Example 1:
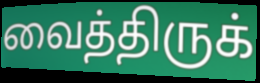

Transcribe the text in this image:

வைத்திருக்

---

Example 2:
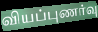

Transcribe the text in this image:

வியப்புணர்வு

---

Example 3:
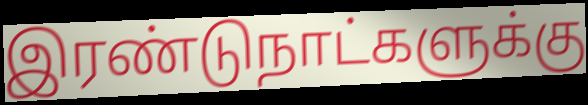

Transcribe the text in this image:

இரண்டுநாட்களுக்கு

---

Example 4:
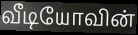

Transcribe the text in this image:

வீடியோவின்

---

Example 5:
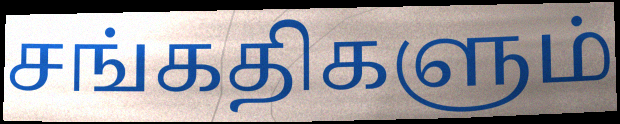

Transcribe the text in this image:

சங்கதிகளும்